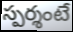
స్పర్శంటే